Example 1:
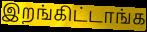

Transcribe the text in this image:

இறங்கிட்டாங்க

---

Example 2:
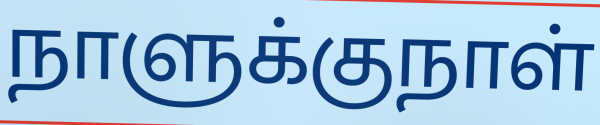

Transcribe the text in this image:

நாளுக்குநாள்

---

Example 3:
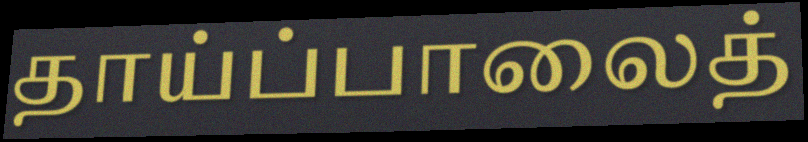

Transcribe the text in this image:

தாய்ப்பாலைத்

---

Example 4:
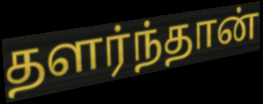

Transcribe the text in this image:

தளர்ந்தான்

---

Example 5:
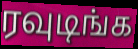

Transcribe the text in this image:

ரவுடிங்க